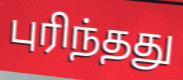
புரிந்தது